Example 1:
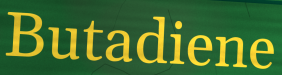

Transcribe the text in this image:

Butadiene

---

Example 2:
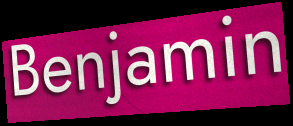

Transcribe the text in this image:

Benjamin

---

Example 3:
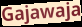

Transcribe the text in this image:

Gajawaja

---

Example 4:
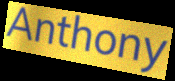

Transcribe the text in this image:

Anthony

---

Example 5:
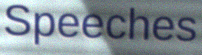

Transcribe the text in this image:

Speeches